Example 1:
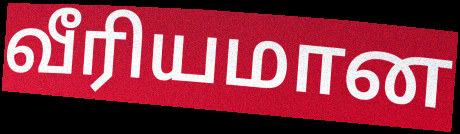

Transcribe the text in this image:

வீரியமான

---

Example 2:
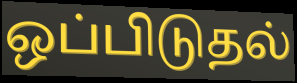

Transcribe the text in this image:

ஒப்பிடுதல்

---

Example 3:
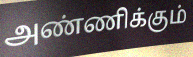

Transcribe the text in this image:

அண்ணிக்கும்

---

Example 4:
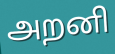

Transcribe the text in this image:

அறனி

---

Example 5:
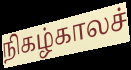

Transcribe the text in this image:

நிகழ்காலச்